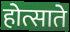
होत्साते